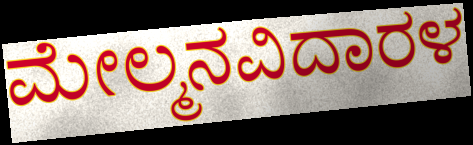
ಮೇಲ್ಮನವಿದಾರಳ